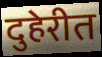
दुहेरीत